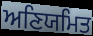
ਅਣਿਯਮਿਤ